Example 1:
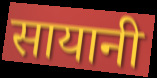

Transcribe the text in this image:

सायानी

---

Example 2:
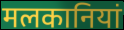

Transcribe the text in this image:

मलकानियां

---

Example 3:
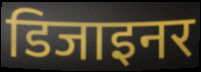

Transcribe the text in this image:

डिजाइनर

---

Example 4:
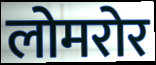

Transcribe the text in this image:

लोमरोर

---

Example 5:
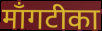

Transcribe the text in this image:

माँगटीका